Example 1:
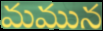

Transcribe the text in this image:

మమున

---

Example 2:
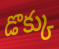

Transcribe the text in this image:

డొక్కు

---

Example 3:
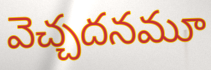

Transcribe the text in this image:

వెచ్చదనమూ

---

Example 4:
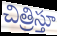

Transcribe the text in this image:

చిత్రిస్తూ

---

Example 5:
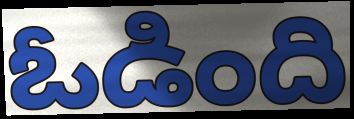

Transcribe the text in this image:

ఓడింది